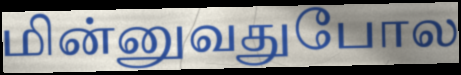
மின்னுவதுபோல